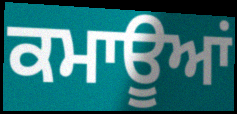
ਕਮਾਊਆਂ